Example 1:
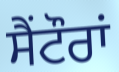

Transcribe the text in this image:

ਸੈਂਟੌਰਾਂ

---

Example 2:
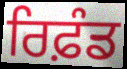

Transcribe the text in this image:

ਰਿਫ਼ੰਡ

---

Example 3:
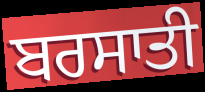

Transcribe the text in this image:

ਬਰਸਾਤੀ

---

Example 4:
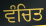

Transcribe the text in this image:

ਵੰਚਿਤ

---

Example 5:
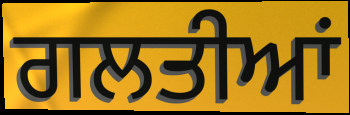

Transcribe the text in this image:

ਗਲਤੀਆਂ